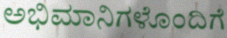
ಅಭಿಮಾನಿಗಳೊಂದಿಗೆ